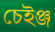
চেইঞ্জ